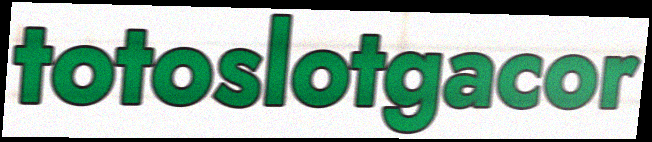
totoslotgacor